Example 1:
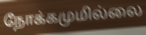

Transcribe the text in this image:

நோக்கமுமில்லை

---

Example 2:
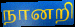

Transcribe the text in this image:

நானறி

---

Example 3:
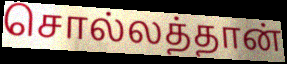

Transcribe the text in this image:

சொல்லத்தான்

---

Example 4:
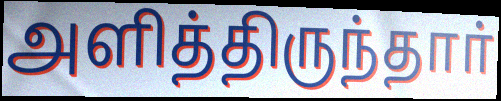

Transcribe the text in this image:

அளித்திருந்தார்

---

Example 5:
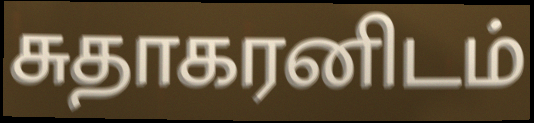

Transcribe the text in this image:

சுதாகரனிடம்